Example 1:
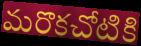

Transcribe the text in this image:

మరొకచోటికి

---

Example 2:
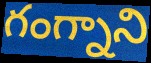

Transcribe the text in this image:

గంగ్నాని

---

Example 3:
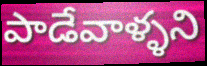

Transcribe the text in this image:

పాడేవాళ్ళని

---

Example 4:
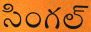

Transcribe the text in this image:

సింగల్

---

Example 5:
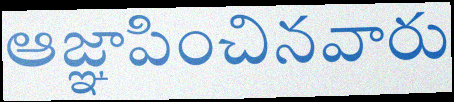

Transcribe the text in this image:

ఆజ్ఞాపించినవారు